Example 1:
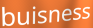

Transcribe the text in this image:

buisness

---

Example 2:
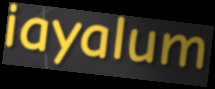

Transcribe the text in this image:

iayalum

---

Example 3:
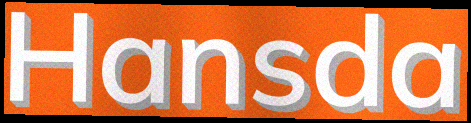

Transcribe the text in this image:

Hansda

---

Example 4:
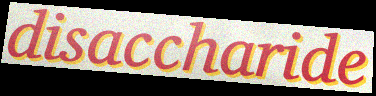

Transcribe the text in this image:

disaccharide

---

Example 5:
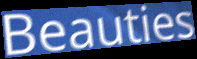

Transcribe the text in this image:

Beauties